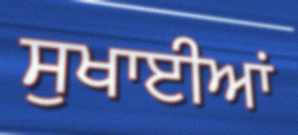
ਸੁਖਾਈਆਂ